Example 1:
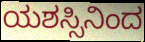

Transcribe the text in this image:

ಯಶಸ್ಸಿನಿಂದ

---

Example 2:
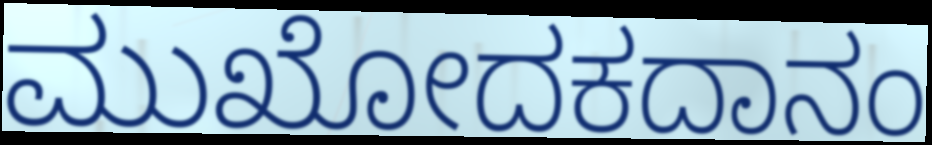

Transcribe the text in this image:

ಮುಖೋದಕದಾನಂ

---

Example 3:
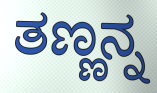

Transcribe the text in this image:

ತಣ್ಣನ್ನ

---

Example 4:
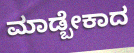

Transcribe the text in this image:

ಮಾಡ್ಬೇಕಾದ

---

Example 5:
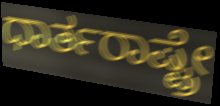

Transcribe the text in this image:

ಧಾರ್ತರಾಷ್ಟ್ರೇ